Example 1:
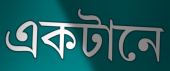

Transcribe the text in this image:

একটানে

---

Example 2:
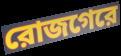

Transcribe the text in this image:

রোজগেরে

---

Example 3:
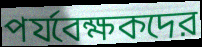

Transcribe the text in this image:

পর্যবেক্ষকদের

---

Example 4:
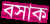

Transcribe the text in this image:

বসাক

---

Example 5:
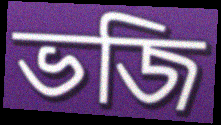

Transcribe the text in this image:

ভজি